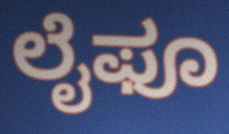
ಲೈಫೂ